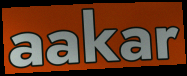
aakar